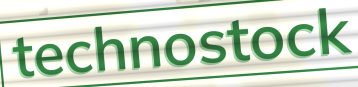
technostock